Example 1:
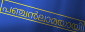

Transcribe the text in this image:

പഞ്ചൻലാമയായി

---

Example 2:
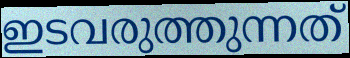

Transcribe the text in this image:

ഇടവരുത്തുന്നത്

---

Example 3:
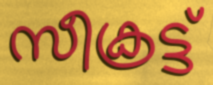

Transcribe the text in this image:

സീക്രട്ട്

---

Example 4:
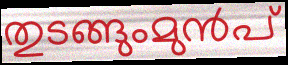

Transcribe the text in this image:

തുടങ്ങുംമുൻപ്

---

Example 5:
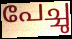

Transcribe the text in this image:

പേച്ചു